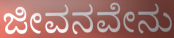
ಜೀವನವೇನು